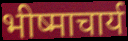
भीष्माचार्य